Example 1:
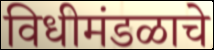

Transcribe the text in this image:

विधीमंडळाचे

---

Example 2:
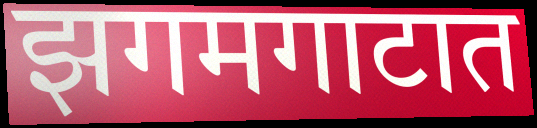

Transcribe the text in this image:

झगमगाटात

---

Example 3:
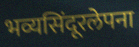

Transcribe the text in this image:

भव्यसिंदूरलेपना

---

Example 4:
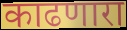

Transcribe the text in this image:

काढणारा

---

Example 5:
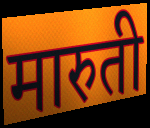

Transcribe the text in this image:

मारुती